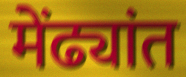
मेंढ्यांत